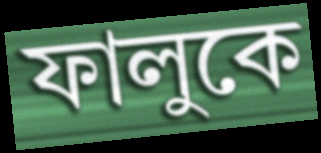
ফালুকে